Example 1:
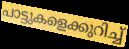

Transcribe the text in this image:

പാട്ടുകളെക്കുറിച്ച്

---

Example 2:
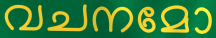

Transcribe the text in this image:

വചനമോ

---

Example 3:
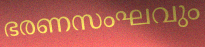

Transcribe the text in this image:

ഭരണസംഘവും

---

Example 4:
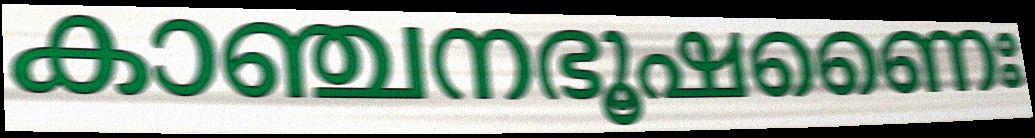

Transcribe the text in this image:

കാഞ്ചനഭൂഷണൈഃ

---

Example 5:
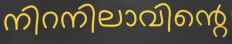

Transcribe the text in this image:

നിറനിലാവിന്റെ